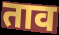
ताव